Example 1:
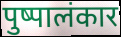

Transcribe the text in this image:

पुष्पालंकार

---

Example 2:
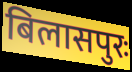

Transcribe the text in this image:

बिलासपुरः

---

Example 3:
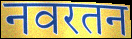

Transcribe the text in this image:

नवरतन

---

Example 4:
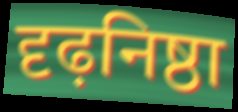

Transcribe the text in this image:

दृढ़निष्ठा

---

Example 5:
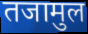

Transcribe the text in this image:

तजामुल